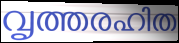
വൃത്തരഹിത